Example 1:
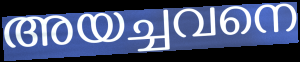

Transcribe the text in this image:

അയച്ചവനെ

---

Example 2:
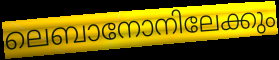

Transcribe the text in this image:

ലെബാനോനിലേക്കും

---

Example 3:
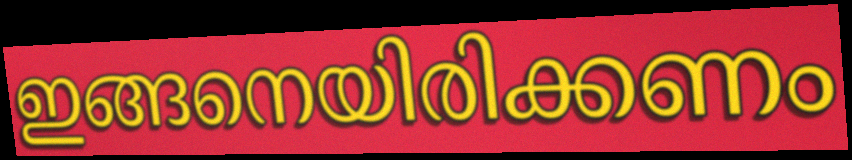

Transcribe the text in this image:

ഇങ്ങനെയിരിക്കണം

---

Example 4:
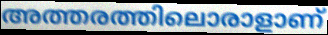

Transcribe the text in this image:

അത്തരത്തിലൊരാളാണ്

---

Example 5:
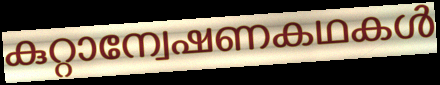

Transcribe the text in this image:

കുറ്റാന്വേഷണകഥകൾ